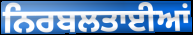
ਨਿਰਬਲਤਾਈਆਂ